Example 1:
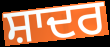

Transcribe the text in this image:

ਸ਼ਾਦਰ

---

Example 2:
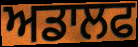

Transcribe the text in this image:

ਅਡਾਲਫ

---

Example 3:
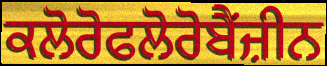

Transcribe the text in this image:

ਕਲੋਰੋਫਲੋਰੋਬੈਂਜ਼ੀਨ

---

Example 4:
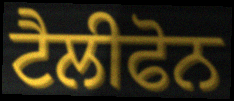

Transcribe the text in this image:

ਟੈਲੀਫੋਨ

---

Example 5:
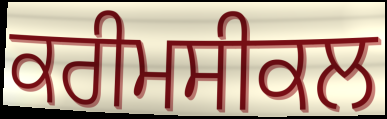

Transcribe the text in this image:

ਕਰੀਮਸੀਕਲ